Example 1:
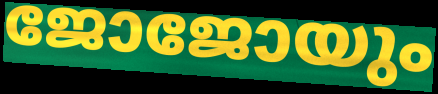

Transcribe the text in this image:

ജോജോയും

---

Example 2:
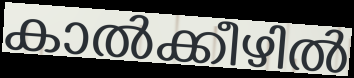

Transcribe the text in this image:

കാൽക്കീഴിൽ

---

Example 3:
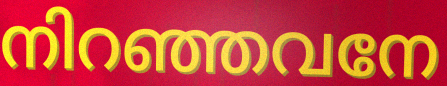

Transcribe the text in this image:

നിറഞ്ഞവനേ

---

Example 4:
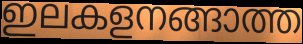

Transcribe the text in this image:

ഇലകളനങ്ങാത്ത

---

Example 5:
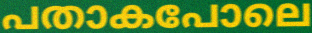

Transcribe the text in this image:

പതാകപോലെ